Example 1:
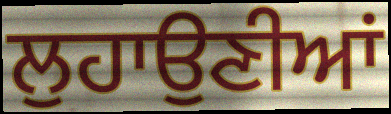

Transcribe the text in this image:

ਲੁਹਾਉਣੀਆਂ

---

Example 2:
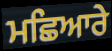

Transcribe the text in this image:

ਮਛਿਆਰੇ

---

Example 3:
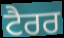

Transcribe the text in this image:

ਟੈਰਰ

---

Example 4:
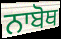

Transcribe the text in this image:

ਨਾਬੋਥ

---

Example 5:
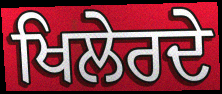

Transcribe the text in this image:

ਖਿਲੇਰਦੇ